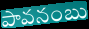
పావనంబు